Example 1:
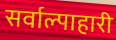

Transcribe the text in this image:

सर्वाल्पाहारी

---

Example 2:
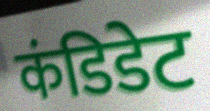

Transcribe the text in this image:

कंडिडेट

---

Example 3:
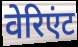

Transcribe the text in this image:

वेरिएंट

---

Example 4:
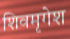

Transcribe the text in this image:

शिवमृगेश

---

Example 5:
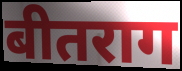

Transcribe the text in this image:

बीतराग